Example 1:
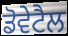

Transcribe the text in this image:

ਡੋਵੇਟੈਲ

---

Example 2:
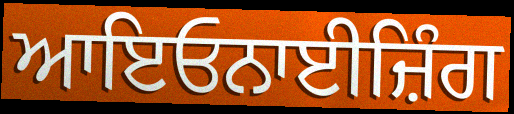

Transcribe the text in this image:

ਆਇਓਨਾਈਜ਼ਿੰਗ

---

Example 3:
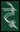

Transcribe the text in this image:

ਟ੍ਰੇ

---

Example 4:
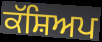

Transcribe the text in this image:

ਕੱਸ਼ਿਅਪ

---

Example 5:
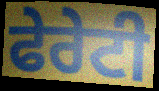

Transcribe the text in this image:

ਫੇਰੇਟੀ